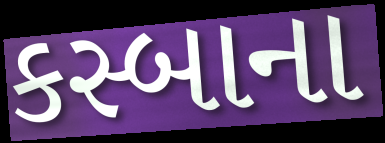
કસ્બાના